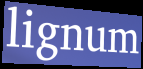
lignum